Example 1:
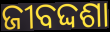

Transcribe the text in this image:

ଜୀବଦ୍ଦଶା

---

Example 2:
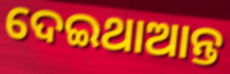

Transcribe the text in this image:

ଦେଇଥାଆନ୍ତ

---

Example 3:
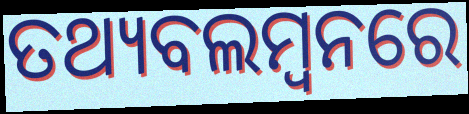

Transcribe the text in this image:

ତଥ୍ୟବଲମ୍ବନରେ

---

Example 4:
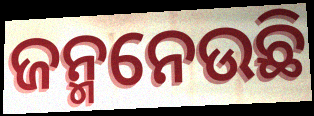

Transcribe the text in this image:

ଜନ୍ମନେଉଛି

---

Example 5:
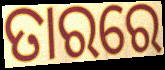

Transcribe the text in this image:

ତାରରେ